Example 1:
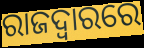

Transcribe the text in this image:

ରାଜଦ୍ୱାରରେ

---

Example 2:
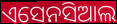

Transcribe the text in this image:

ଏସେନସିଆଲ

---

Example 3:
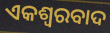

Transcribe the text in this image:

ଏକଶ୍ୱରବାଦ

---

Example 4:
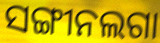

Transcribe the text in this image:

ସଙ୍ଗୀନଲଗା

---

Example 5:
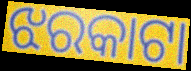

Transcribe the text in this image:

ଝରକାଟା